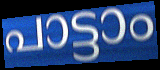
പാട്ടാം